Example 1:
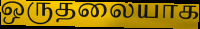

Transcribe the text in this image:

ஒருதலையாக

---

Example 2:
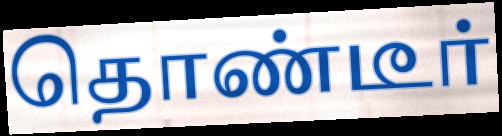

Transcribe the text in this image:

தொண்டீர்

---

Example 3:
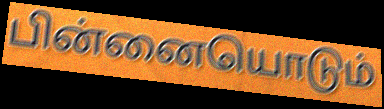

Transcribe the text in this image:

பின்னையொடும்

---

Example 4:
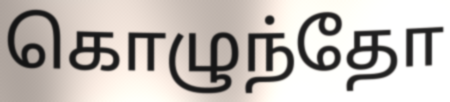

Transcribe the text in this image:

கொழுந்தோ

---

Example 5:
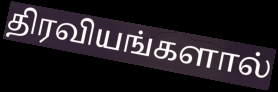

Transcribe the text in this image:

திரவியங்களால்